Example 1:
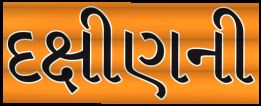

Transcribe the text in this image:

દક્ષીણની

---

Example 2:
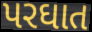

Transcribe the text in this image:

પરઘાત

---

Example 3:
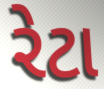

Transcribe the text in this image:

રેટા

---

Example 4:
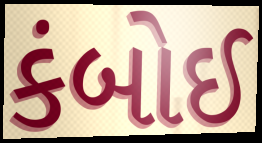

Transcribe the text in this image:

કંબોઈ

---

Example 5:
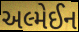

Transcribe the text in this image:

અલ્મેઈન